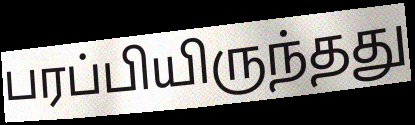
பரப்பியிருந்தது